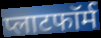
प्लाटफॉर्म